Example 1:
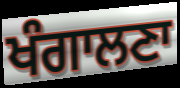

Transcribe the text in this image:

ਖੰਗਾਲਣਾ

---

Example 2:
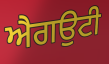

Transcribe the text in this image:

ਐਗਉਟੀ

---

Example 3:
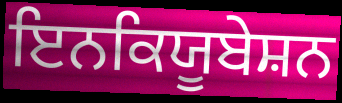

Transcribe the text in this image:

ਇਨਕਿਯੂਬੇਸ਼ਨ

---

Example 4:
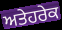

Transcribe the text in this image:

ਅਤੇਹਰੇਕ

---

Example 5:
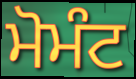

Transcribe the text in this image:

ਮੋਮੰਟ